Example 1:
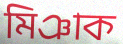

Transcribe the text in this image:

মিঞাক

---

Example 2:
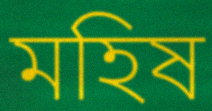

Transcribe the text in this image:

মহিষ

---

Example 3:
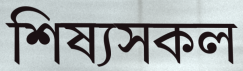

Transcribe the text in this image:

শিষ্যসকল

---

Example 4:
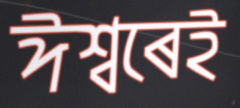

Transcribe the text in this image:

ঈশ্বৰেই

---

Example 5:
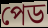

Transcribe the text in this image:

পেড